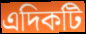
এদিকটি